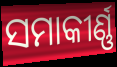
ସମାକୀର୍ଣ୍ଣ